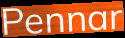
Pennar